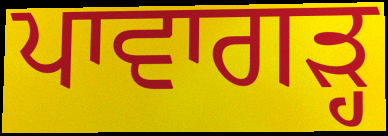
ਪਾਵਾਗੜ੍ਹ